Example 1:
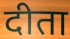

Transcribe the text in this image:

दीता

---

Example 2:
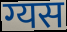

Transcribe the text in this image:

ग्यस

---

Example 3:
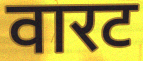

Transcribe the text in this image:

वारट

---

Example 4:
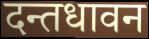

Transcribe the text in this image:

दन्तधावन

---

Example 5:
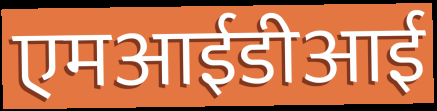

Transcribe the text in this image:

एमआईडीआई